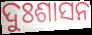
ଦୁଃଶାସନ